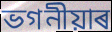
ভগনীয়াৰ